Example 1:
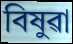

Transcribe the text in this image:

বিষুৱা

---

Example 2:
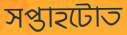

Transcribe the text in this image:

সপ্তাহটোত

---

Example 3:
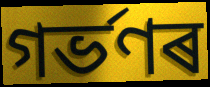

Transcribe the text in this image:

গৰ্ভণৰ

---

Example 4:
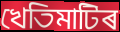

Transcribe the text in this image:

খেতিমাটিৰ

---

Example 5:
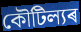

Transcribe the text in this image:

কৌটিল্যৰ